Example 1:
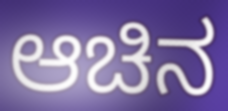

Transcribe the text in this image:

ಆಚಿನ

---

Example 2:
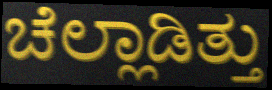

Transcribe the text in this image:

ಚೆಲ್ಲಾಡಿತ್ತು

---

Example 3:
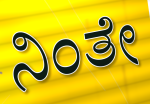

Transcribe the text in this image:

ನಿಂತೇ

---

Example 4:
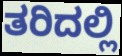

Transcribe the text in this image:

ತರಿದಲ್ಲಿ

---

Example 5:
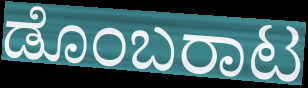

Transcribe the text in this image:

ಡೊಂಬರಾಟ